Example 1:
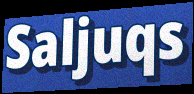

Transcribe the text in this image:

Saljuqs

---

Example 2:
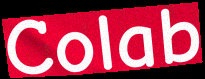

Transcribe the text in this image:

Colab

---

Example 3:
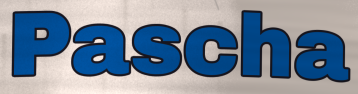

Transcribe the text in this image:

Pascha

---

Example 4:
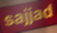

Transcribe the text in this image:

sajjad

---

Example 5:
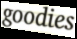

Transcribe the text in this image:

goodies